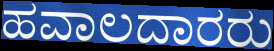
ಹವಾಲದಾರರು